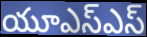
యూఎస్ఎస్